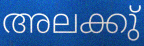
അലക്കു്